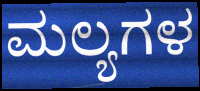
ಮಲ್ಯಗಳ